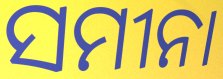
ସମୀନା